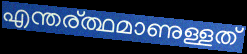
എന്തര്ത്ഥമാണുള്ളത്